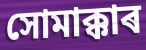
সোমাক্কাৰ